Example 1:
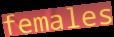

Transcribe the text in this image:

females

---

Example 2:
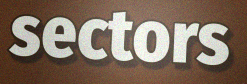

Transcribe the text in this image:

sectors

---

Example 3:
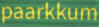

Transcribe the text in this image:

paarkkum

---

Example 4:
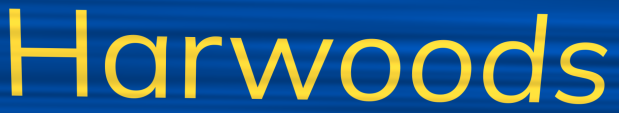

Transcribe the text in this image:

Harwoods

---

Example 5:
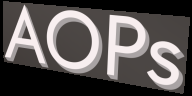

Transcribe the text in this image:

AOPs